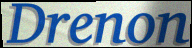
Drenon